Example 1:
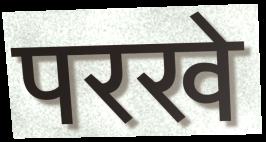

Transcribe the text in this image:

परखे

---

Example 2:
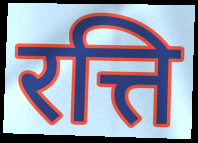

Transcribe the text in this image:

रत्ति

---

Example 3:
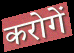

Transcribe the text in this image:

करोगें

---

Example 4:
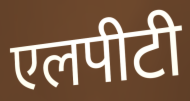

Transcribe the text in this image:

एलपीटी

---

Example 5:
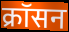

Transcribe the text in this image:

क्रॉसन